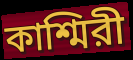
কাশ্মিরী